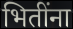
भितींना